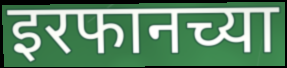
इरफानच्या